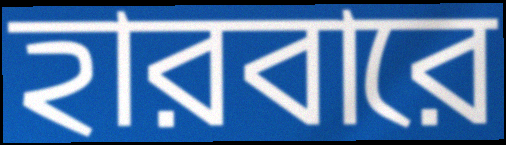
হারবারে